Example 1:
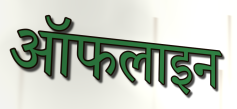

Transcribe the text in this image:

ऑफलाइन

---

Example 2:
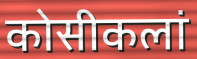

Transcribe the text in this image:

कोसीकलां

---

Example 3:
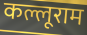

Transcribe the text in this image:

कल्लूराम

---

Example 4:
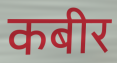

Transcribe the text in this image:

कबीर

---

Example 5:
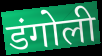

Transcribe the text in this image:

डंगोली